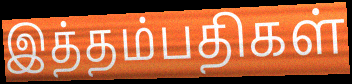
இத்தம்பதிகள்